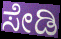
ಸೇಡಿ